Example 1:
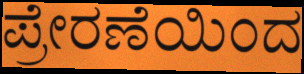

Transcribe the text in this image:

ಪ್ರೇರಣೆಯಿಂದ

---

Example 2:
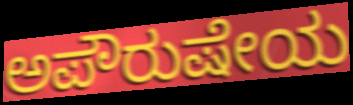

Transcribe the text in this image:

ಅಪೌರುಷೇಯ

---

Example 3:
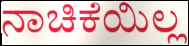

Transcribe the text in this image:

ನಾಚಿಕೆಯಿಲ್ಲ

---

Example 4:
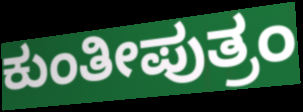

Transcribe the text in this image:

ಕುಂತೀಪುತ್ರಂ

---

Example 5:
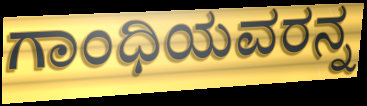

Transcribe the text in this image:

ಗಾಂಧಿಯವರನ್ನ